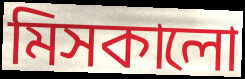
মিসকালো